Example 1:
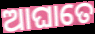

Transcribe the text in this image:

ଆଘାତେ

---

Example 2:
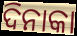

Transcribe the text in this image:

ଦିନାକା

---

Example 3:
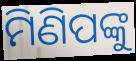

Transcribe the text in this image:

ମିଣିପଙ୍କୁ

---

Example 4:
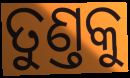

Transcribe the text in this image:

ତୁଣ୍ତକୁ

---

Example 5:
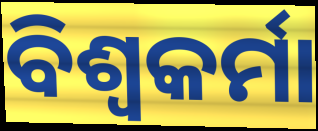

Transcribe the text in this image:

ବିଶ୍ବକର୍ମା